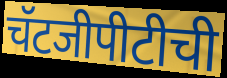
चॅटजीपीटीची